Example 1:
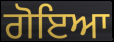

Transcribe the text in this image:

ਗੋਇਆ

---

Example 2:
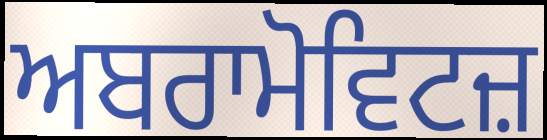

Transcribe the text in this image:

ਅਬਰਾਮੋਵਿਟਜ਼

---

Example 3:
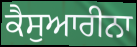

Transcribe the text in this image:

ਕੈਸੁਆਰੀਨਾ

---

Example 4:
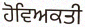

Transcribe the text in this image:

ਹੋਵਿਅਕਤੀ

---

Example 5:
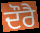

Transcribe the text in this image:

ਦੌਰੈ